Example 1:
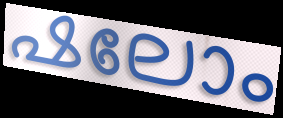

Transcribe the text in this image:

ഷലോം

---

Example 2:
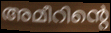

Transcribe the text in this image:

അമീറിന്റെ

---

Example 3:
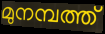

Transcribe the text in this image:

മുനമ്പത്ത്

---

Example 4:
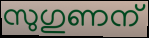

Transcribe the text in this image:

സുഗുണന്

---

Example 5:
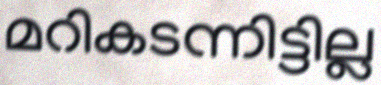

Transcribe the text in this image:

മറികടന്നിട്ടില്ല